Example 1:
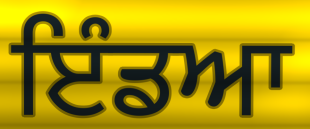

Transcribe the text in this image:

ਇੰਡਆ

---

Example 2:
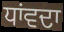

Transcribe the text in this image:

ਧਾਂਵਦਾ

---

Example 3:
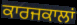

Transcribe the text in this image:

ਕਾਰਜਕਾਲਾਂ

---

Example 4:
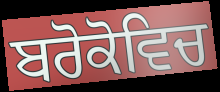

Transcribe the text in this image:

ਬਰੋਕੋਵਿਚ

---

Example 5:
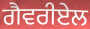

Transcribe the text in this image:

ਗੈਵਰੀਏਲ